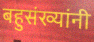
बहुसंख्यांनी